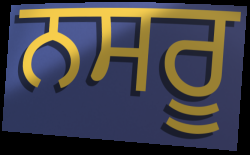
ਨਸਰੂ